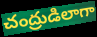
చంద్రుడిలాగా